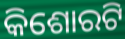
କିଶୋରଟି